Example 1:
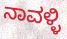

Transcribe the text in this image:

ನಾವಳ್ಳಿ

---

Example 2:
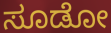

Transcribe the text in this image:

ಸೂಡೋ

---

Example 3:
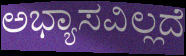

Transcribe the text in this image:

ಅಭ್ಯಾಸವಿಲ್ಲದೆ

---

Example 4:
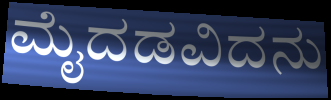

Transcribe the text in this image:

ಮೈದಡವಿದನು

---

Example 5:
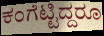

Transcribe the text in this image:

ಕಂಗೆಟ್ಟಿದ್ದರೂ